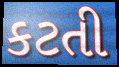
કટતી